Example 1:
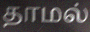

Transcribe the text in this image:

தாமல்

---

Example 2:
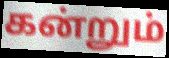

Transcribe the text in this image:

கன்றும்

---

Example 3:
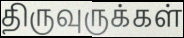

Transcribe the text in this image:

திருவுருக்கள்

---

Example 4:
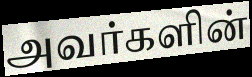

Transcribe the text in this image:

அவர்களின்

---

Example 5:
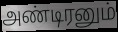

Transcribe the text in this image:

அண்டிரனும்